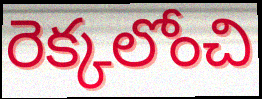
రెక్కలోంచి